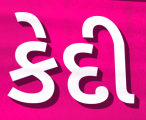
કેદી